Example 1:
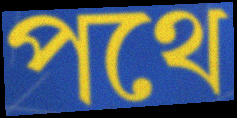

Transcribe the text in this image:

পথে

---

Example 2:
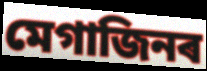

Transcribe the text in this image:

মেগাজিনৰ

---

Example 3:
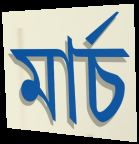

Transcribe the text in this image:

মাৰ্চ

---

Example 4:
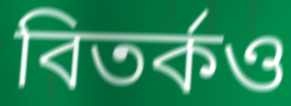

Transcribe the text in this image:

বিতৰ্কও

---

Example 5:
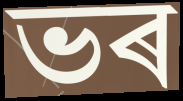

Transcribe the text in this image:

ভৰ